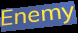
Enemy